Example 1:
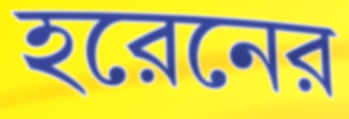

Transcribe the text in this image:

হরেনের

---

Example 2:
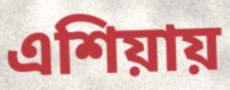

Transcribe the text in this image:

এশিয়ায়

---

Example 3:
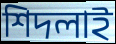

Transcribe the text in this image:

শিদলাই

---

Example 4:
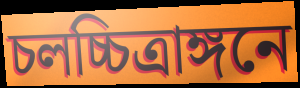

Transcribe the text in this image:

চলচ্চিত্রাঙ্গনে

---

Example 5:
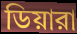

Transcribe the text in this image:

ডিয়ারা